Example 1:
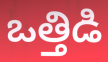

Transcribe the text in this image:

ఒత్తిడి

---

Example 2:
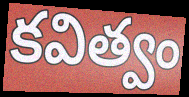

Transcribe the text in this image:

కవిత్వం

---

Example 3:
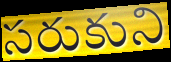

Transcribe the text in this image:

సరుకుని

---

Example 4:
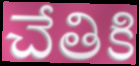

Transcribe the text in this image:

చేతికి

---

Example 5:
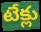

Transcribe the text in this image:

టేక్లు